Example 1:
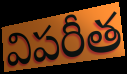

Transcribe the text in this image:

విపరీత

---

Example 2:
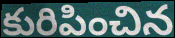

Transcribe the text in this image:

కురిపించిన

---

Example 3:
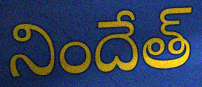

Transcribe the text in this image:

నిందేత్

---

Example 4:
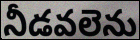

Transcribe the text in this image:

నీడవలెను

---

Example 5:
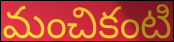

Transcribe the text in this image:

మంచికంటి